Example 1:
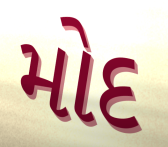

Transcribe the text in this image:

મોદ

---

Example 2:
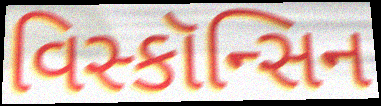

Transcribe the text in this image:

વિસ્કૉન્સિન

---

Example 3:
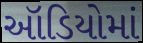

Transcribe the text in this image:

ઑડિયોમાં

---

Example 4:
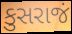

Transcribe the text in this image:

કુસરાજં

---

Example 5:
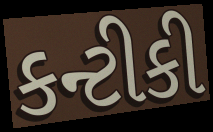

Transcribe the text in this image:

કન્ટીકી